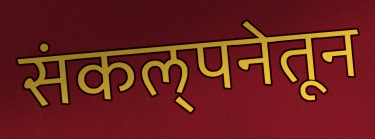
संकल्पनेतून